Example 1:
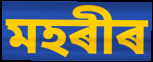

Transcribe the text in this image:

মহৰীৰ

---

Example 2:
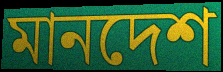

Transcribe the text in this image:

মানদেশ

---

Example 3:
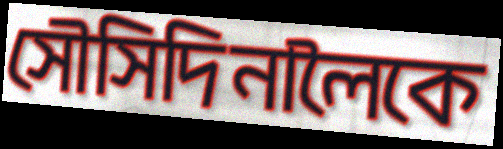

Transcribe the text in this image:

সৌসিদিনালৈকে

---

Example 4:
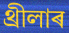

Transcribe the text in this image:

থ্ৰীলাৰ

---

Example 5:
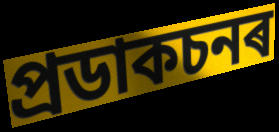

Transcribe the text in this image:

প্ৰডাকচনৰ